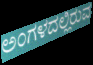
ಅಂಗಳದಲ್ಲಿರುವ